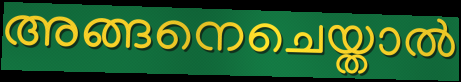
അങ്ങനെചെയ്താൽ